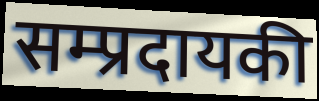
सम्प्रदायकी